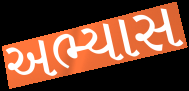
અભ્યાસ